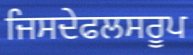
ਜਿਸਦੇਫਲਸਰੂਪ